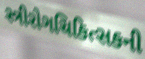
સ્ત્રીરોગચિકિત્સકની